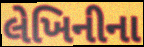
લેખિનીના